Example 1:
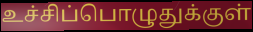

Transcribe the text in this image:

உச்சிப்பொழுதுக்குள்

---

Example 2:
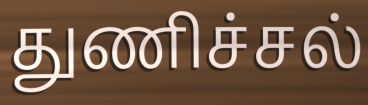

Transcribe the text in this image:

துணிச்சல்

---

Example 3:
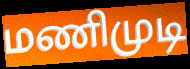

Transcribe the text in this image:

மணிமுடி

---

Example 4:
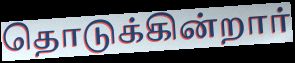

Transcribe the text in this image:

தொடுக்கின்றார்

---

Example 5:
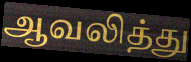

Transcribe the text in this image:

ஆவலித்து